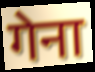
गेना